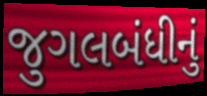
જુગલબંધીનું